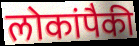
लोकांपैकी